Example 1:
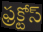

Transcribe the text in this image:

ఫ్రక్టోస్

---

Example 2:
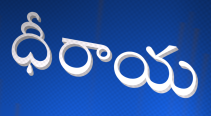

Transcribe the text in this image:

ధీరాయ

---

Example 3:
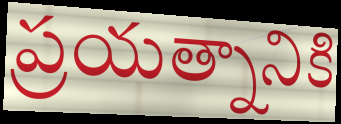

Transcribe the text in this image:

ప్రయత్నానికి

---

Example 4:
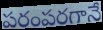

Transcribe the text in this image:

పరంపరగానే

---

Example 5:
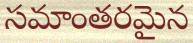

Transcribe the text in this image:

సమాంతరమైన